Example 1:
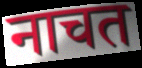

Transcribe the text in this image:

नाचत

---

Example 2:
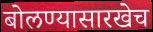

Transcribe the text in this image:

बोलण्यासारखेच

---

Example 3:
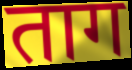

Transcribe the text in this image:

ताग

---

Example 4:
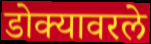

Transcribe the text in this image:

डोक्यावरले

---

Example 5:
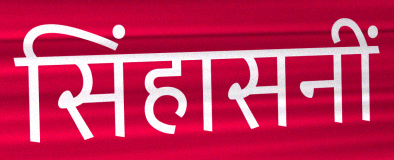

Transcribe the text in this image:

सिंहासनीं